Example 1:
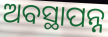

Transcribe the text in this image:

ଅବସ୍ଥାପନ୍ନ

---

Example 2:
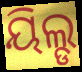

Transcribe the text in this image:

ୟିଲ୍ଡ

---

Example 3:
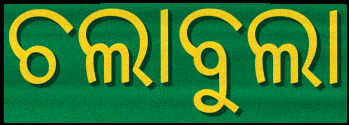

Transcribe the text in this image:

ଚଲାବୁଲା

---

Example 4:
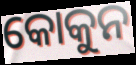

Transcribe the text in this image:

କୋକୁନ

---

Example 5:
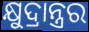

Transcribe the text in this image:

କ୍ଷୁଦ୍ରାନ୍ତ୍ରର